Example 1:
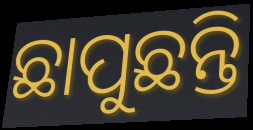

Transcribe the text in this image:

ଛାପୁଛନ୍ତି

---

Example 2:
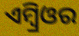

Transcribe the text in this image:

ଏମ୍ବ୍ରିଓର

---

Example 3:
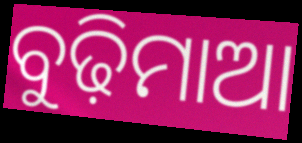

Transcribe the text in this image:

ବୁଢ଼ିମାଆ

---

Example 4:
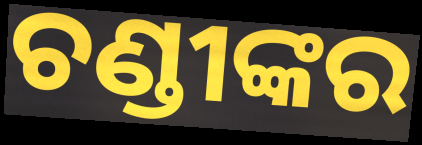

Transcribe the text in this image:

ଚଣ୍ଡୀଙ୍କର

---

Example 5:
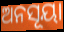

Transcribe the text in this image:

ଅନସୂୟା